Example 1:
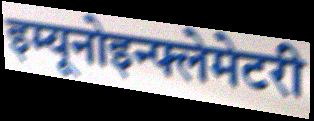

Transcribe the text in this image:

इम्यूनोइन्फ्लेमेटरी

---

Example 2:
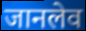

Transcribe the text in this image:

जानलेव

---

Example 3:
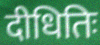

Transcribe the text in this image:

दीधितिः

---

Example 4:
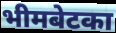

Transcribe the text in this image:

भीमबेटका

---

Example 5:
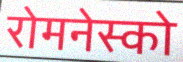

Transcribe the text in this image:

रोमनेस्को